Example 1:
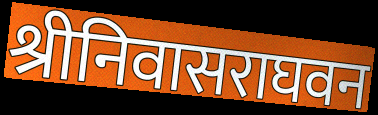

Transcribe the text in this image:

श्रीनिवासराघवन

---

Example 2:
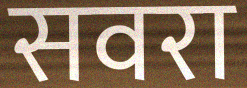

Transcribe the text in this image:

सवरा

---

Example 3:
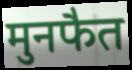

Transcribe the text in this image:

मुनफैत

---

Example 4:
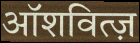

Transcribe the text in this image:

ऑशवित्ज़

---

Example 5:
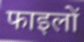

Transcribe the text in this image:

फाइलों